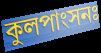
কুলপাংসনঃ